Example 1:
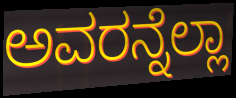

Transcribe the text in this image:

ಅವರನ್ನೆಲ್ಲಾ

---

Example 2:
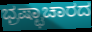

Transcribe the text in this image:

ಭ್ರಷ್ಟಾಚಾರದ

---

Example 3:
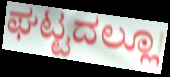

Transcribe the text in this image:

ಘಟ್ಟದಲ್ಲೂ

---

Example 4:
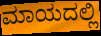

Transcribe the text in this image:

ಮಾಯದಲ್ಲಿ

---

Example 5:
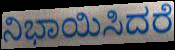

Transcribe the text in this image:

ನಿಭಾಯಿಸಿದರೆ